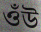
ওঁউ